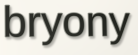
bryony